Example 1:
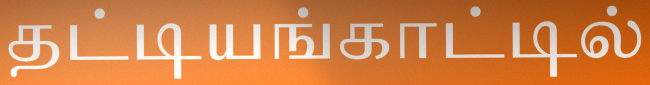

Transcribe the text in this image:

தட்டியங்காட்டில்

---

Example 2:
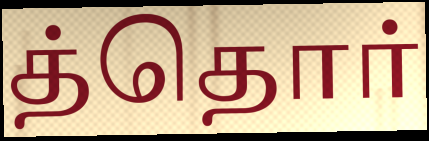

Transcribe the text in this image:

த்தொர்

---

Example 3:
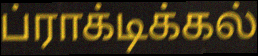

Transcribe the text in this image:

ப்ராக்டிக்கல்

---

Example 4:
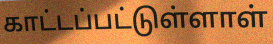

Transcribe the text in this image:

காட்டப்பட்டுள்ளாள்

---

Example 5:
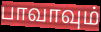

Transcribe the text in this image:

பாவாவும்